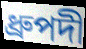
ধ্রুপদী